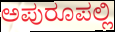
ಅಪುರೂಪಲ್ಲಿ